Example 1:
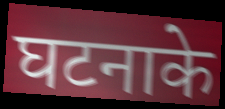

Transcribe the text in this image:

घटनाके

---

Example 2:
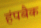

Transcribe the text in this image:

हंपबैक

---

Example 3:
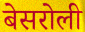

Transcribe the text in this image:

बेसरोली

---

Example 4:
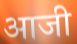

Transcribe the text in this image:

आजी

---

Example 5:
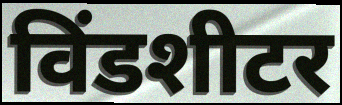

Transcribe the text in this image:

विंडशीटर